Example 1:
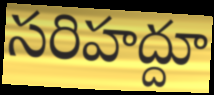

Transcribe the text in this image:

సరిహద్దూ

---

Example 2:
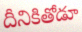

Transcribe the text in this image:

దీనికితోడూ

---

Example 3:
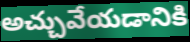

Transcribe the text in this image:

అచ్చువేయడానికి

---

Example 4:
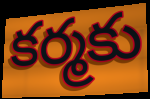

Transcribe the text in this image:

కర్మకు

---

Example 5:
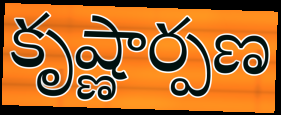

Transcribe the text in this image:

కృష్ణార్పణ